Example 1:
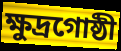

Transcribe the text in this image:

ক্ষুদ্রগোষ্ঠী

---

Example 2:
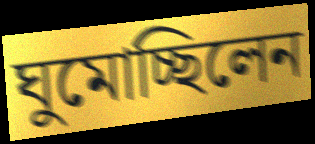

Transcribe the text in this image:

ঘুমোচ্ছিলেন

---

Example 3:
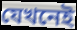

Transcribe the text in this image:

যেখনেই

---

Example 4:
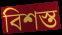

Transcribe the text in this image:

বিশস্ত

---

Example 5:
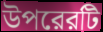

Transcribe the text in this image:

উপরেরটি